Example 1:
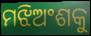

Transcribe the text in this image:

ମଝିଅଂଶକୁ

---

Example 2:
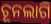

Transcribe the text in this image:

ଚୂନଲାଗି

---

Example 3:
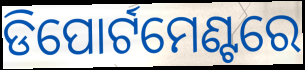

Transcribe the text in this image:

ଡିପୋର୍ଟମେଣ୍ଟରେ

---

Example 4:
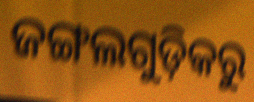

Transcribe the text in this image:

ଜଙ୍ଗଲଗୁଡ଼ିକରୁ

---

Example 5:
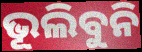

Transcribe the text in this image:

ଭୂଲିବୁନି